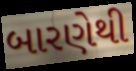
બારણેથી